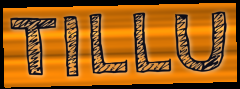
TILLU